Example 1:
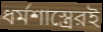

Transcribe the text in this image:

ধর্মশাস্ত্রেরই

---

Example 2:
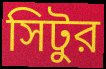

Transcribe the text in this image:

সিটুর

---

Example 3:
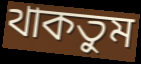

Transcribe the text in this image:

থাকতুম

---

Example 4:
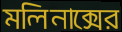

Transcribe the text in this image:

মলিনাক্সের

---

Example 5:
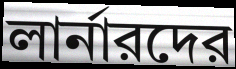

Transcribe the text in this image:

লার্নারদের